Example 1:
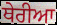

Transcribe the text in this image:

ਥੇਰੀਆ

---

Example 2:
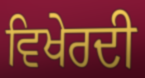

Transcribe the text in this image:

ਵਿਖੇਰਦੀ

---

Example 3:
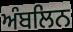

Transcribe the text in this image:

ਅੰਬਲਿਨ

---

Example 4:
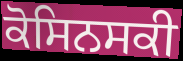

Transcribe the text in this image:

ਕੋਸਿਨਸਕੀ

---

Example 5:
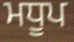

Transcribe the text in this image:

ਮਧੂਪ